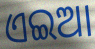
ଏଇଆ